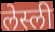
लेस्ली